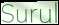
Surul